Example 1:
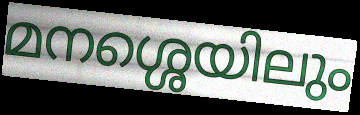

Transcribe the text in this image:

മനശ്ശെയിലും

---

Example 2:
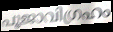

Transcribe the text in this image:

പൂജാവിഗ്രഹം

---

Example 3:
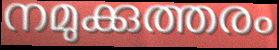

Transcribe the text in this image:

നമുക്കുത്തരം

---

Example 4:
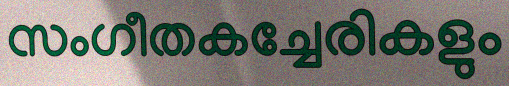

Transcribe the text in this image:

സംഗീതകച്ചേരികളും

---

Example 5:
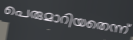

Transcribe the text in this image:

പെരുമാറിയതെന്ന്